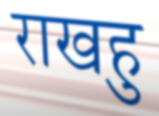
राखहु